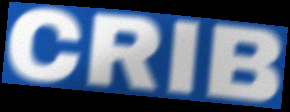
CRIB